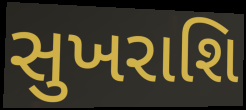
સુખરાશિ